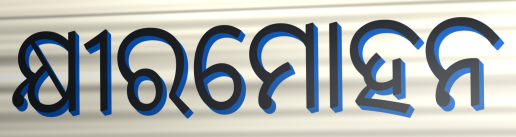
କ୍ଷୀରମୋହନ